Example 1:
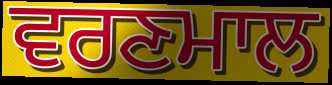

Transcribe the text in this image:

ਵਰਣਮਾਲ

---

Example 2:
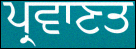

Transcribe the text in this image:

ਪ੍ਰਵਾਣਤ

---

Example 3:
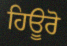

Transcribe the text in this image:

ਹਿਊਰੋ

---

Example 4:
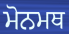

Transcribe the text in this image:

ਮੋਨਮਥ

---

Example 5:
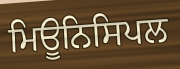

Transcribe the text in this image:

ਮਿਊਨਿਸਿਪਲ